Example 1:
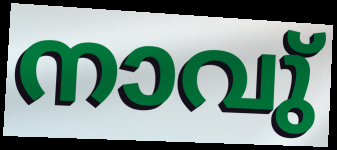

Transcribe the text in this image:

നാവു്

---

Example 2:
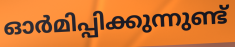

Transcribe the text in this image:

ഓർമിപ്പിക്കുന്നുണ്ട്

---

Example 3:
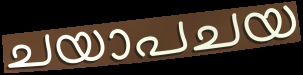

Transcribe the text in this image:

ചയാപചയ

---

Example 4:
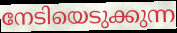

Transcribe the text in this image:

നേടിയെടുക്കുന്ന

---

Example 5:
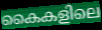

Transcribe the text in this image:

കൈകളിലെ